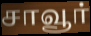
சாவூர்